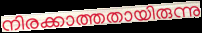
നിരക്കാത്തതായിരുന്നു